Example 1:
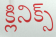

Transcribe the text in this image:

క్లినిక్స్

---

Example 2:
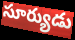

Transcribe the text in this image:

సూర్యుడు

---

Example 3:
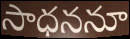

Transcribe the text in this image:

సాధననూ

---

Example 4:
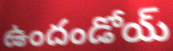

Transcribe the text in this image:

ఉందండోయ్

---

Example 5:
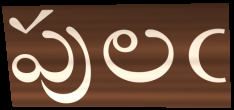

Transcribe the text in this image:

పులఁ